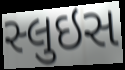
સ્લુઇસ